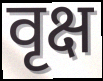
वृक्ष